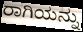
ರಾಗಿಯನ್ನು